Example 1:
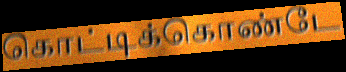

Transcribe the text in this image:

கொட்டிக்கொண்டே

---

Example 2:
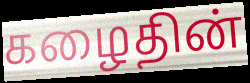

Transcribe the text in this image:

கழைதின்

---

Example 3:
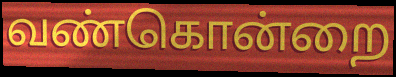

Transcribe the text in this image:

வண்கொன்றை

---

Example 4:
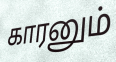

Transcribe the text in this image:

காரனும்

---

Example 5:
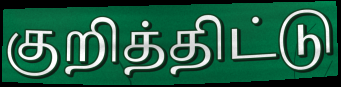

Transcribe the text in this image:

குறித்திட்டு